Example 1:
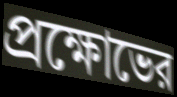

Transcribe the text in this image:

প্রক্ষোভের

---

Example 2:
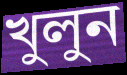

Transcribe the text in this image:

খুলুন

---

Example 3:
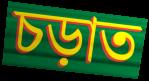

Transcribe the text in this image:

চড়াত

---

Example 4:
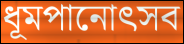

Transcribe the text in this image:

ধূমপানোৎসব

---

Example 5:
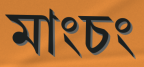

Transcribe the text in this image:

মাংচং